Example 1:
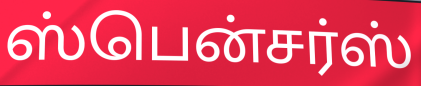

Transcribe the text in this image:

ஸ்பென்சர்ஸ்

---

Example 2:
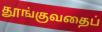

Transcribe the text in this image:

தூங்குவதைப்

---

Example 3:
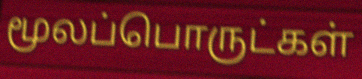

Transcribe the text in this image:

மூலப்பொருட்கள்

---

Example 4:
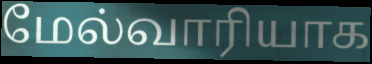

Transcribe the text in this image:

மேல்வாரியாக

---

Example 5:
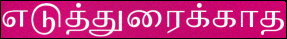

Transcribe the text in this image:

எடுத்துரைக்காத